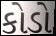
કોડો